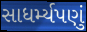
સાધર્મ્યપણું